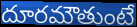
దూరమౌతుంటే